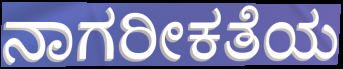
ನಾಗರೀಕತೆಯ